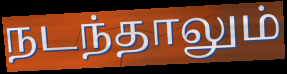
நடந்தாலும்